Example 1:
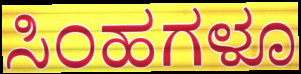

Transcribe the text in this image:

ಸಿಂಹಗಳೂ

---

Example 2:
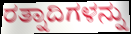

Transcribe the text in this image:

ರತ್ನಾದಿಗಳನ್ನು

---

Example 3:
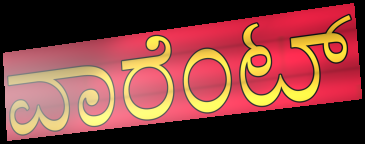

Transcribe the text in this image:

ವಾರೆಂಟ್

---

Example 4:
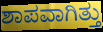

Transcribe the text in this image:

ಶಾಪವಾಗಿತ್ತು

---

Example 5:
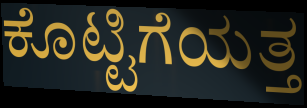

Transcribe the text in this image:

ಕೊಟ್ಟಿಗೆಯತ್ತ